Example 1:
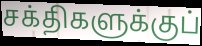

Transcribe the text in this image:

சக்திகளுக்குப்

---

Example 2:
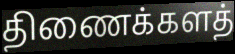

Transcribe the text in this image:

திணைக்களத்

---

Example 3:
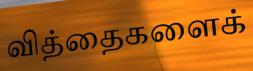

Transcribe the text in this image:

வித்தைகளைக்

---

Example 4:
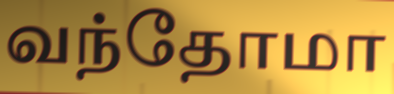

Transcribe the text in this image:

வந்தோமா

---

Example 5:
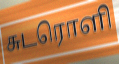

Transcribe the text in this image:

சுடரொளி